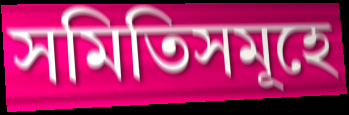
সমিতিসমূহে